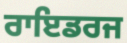
ਰਾਇਡਰਜ